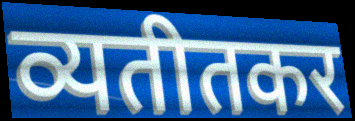
व्यतीतकर